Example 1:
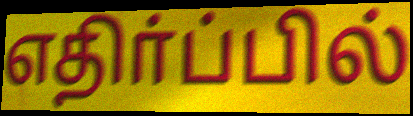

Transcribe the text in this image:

எதிர்ப்பில்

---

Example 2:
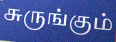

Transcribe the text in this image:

சுருங்கும்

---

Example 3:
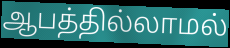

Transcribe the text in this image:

ஆபத்தில்லாமல்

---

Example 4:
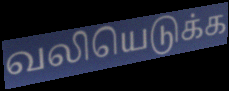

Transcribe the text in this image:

வலியெடுக்க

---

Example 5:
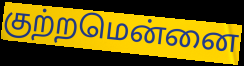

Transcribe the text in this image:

குற்றமென்னை